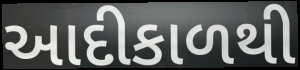
આદીકાળથી